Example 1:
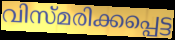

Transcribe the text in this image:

വിസ്മരിക്കപ്പെട്ട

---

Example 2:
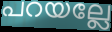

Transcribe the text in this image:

പറയല്ലേ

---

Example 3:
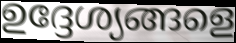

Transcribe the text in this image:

ഉദ്ദേശ്യങ്ങളെ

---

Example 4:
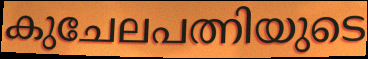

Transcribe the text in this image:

കുചേലപത്നിയുടെ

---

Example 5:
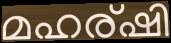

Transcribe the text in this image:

മഹര്ഷി